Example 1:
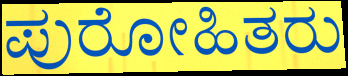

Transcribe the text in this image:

ಪುರೋಹಿತರು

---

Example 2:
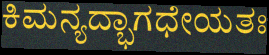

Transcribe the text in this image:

ಕಿಮನ್ಯದ್ಭಾಗಧೇಯತಃ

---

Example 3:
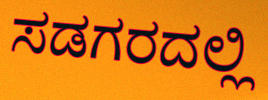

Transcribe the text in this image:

ಸಡಗರದಲ್ಲಿ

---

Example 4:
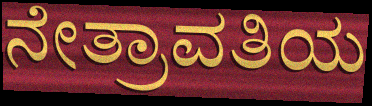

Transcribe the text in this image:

ನೇತ್ರಾವತಿಯ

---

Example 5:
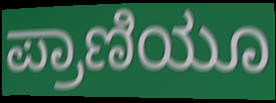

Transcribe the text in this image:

ಪ್ರಾಣಿಯೂ